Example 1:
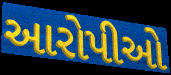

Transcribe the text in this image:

આરોપીઓ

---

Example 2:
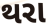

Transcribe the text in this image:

થરા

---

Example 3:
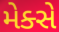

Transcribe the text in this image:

મેક્સે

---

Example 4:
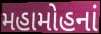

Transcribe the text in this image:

મહામોહનાં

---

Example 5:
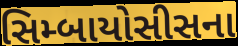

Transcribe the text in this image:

સિમ્બાયોસીસના